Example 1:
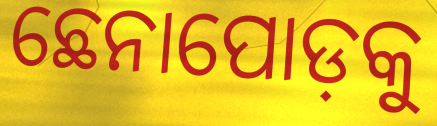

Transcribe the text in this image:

ଛେନାପୋଡ଼କୁ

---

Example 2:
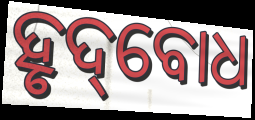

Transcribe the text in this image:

ହୃଦ୍‌ବୋଧ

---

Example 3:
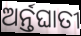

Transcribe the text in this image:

ଅର୍ନ୍ତଘାତୀ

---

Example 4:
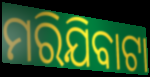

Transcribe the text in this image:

ମରିଯିବାଟା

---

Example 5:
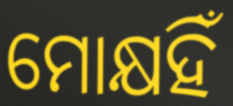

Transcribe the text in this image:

ମୋକ୍ଷହିଁ